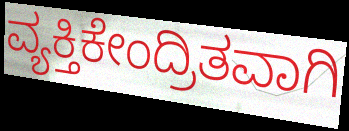
ವ್ಯಕ್ತಿಕೇಂದ್ರಿತವಾಗಿ